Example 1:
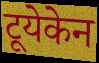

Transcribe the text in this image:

टूयेकेन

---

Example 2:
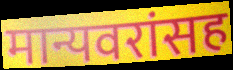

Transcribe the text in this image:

मान्यवरांसह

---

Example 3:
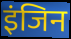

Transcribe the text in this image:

इंजिन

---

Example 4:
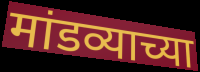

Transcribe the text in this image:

मांडव्याच्या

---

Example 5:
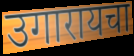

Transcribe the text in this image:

उगारायचा